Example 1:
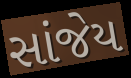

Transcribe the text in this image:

સાંજેય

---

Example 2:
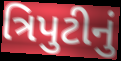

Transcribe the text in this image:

ત્રિપુટીનું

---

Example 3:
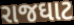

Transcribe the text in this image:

રાજઘાટ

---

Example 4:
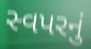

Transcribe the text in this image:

સ્વપરનું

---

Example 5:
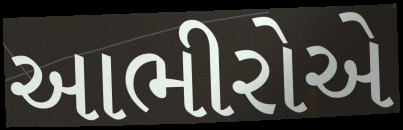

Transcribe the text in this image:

આભીરોએ